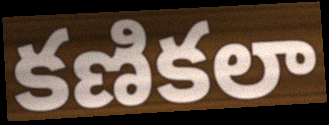
కణికలా